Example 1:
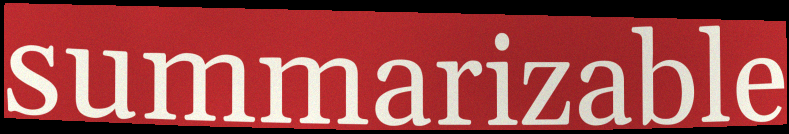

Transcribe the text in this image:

summarizable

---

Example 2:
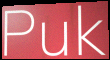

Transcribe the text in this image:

Puk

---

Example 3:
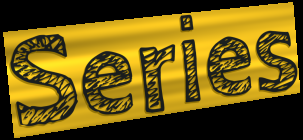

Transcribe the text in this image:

Series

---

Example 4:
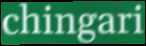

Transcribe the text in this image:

chingari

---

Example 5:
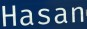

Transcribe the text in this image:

Hasan